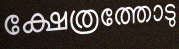
ക്ഷേത്രത്തോടു